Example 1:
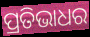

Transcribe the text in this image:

ପ୍ରତିଭାଧର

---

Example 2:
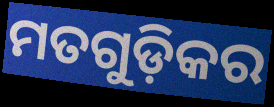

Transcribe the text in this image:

ମତଗୁଡ଼ିକର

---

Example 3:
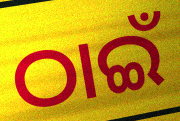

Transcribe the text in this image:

ଠାଇଁ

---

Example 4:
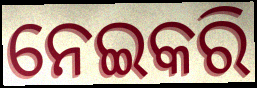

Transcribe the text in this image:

ନେଇକରି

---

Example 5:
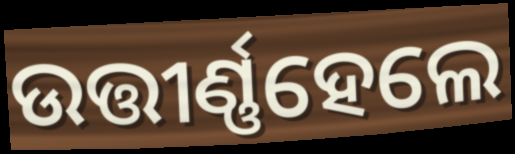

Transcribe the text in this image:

ଉତ୍ତୀର୍ଣ୍ଣହେଲେ